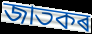
জাতকৰ